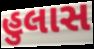
હુલાસ